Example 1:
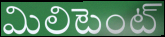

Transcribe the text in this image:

మిలిటెంట్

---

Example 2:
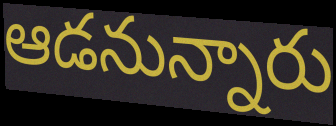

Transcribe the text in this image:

ఆడనున్నారు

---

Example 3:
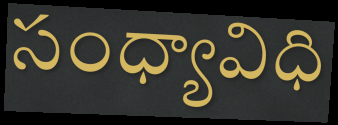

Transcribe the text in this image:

సంధ్యావిధి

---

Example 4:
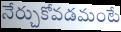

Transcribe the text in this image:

నేర్చుకోవడమంటే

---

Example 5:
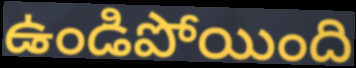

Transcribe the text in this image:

ఉండిపోయింది